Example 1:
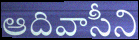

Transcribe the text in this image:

ఆదివాసీని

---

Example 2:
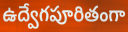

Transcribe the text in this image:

ఉద్వేగపూరితంగా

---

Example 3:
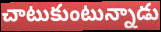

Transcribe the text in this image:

చాటుకుంటున్నాడు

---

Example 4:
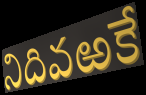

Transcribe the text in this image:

నిదివఱకే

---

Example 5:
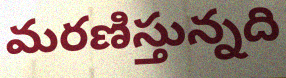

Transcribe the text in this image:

మరణిస్తున్నది